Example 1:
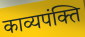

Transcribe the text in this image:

काव्यपंक्ति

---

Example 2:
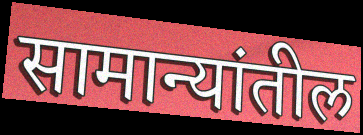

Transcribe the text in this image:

सामान्यांतील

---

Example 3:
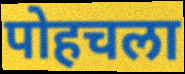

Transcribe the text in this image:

पोहचला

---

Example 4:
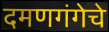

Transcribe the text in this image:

दमणगंगेचे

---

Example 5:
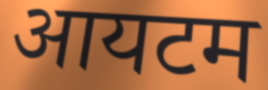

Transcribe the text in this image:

आयटम